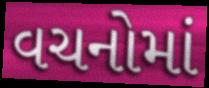
વચનોમાં